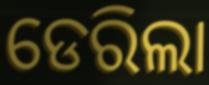
ଡେରିଲା